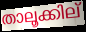
താലൂക്കില്